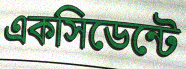
একসিডেন্টে